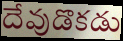
దేవుడొకడు